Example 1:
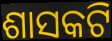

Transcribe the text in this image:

ଶାସକଟି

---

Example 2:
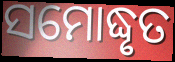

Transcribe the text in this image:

ସମୋଦ୍ଧୃତ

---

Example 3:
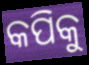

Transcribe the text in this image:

କପିକୁ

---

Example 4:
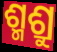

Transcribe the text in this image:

ଶ୍ମଶ୍ରୁ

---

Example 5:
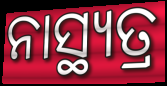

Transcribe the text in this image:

ନାସ୍ଥ୍ୟତ୍ର